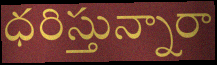
ధరిస్తున్నారా